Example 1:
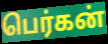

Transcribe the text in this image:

பெர்கன்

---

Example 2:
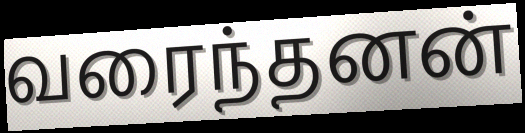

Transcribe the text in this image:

வரைந்தனன்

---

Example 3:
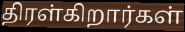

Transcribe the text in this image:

திரள்கிறார்கள்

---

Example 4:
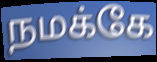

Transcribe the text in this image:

நமக்கே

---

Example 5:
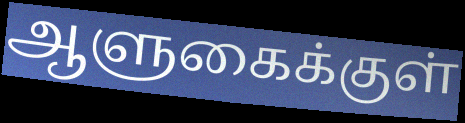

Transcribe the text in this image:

ஆளுகைக்குள்